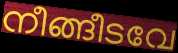
നീങ്ങീടവേ